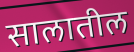
सालातील